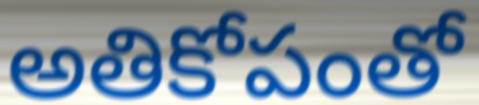
అతికోపంతో